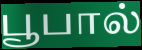
பூபால்